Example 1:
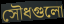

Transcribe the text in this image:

সৌধগুলো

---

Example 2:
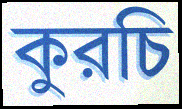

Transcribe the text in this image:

কুরচি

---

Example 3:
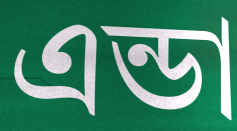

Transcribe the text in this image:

এন্ডা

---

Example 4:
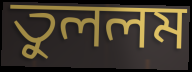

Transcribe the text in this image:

তুললম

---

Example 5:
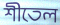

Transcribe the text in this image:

শীতেল